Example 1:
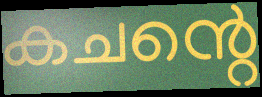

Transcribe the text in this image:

കചന്റെ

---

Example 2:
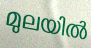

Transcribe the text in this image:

മുലയിൽ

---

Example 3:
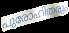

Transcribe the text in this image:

പുരോഹിതരും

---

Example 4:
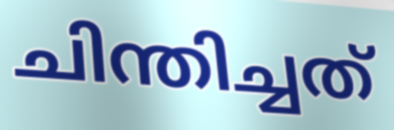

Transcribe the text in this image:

ചിന്തിച്ചത്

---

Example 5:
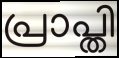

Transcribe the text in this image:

പ്രാപ്തി